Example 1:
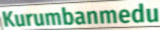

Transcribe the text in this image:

Kurumbanmedu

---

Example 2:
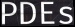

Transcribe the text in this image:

PDEs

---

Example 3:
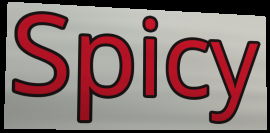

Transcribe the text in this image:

Spicy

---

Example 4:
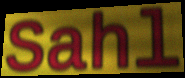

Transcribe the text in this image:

Sahl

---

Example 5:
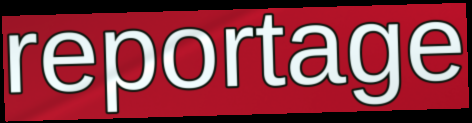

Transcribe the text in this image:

reportage